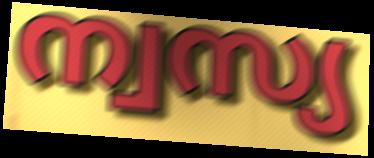
ന്വസ്യ